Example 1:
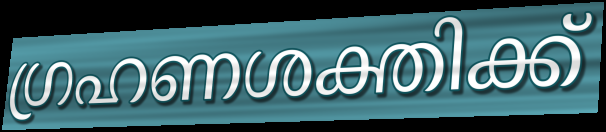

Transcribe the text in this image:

ഗ്രഹണശക്തിക്ക്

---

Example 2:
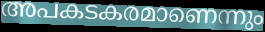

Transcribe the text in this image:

അപകടകരമാണെന്നും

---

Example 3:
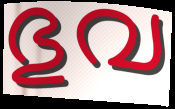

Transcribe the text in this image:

ഭുവ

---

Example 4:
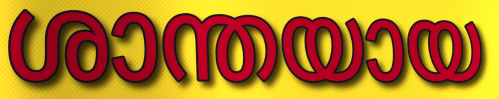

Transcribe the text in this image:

ശാന്തയായ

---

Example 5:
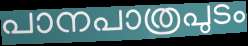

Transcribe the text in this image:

പാനപാത്രപുടം